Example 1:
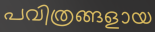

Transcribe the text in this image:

പവിത്രങ്ങളായ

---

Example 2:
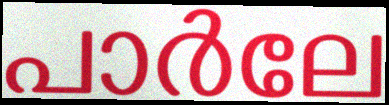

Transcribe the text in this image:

പാർലേ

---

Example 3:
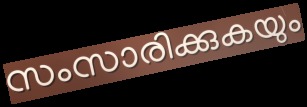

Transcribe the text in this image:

സംസാരിക്കുകയും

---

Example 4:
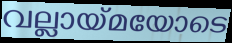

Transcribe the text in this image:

വല്ലായ്മയോടെ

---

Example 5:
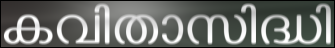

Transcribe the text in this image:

കവിതാസിദ്ധി